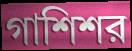
গাশিশর